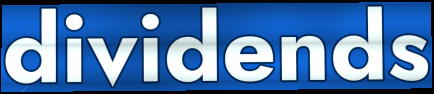
dividends